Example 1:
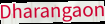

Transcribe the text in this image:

Dharangaon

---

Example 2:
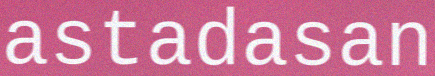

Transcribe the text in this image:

astadasan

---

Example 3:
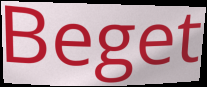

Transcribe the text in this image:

Beget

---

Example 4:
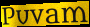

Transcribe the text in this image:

Puvam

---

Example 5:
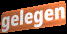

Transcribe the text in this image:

gelegen